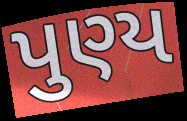
પુણ્ય